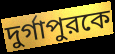
দুর্গাপুরকে